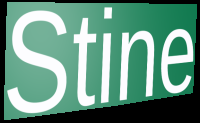
Stine